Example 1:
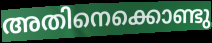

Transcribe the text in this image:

അതിനെക്കൊണ്ടു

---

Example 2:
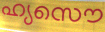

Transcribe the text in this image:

ഹ്യസൌ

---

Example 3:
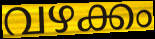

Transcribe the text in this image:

വഴക്കം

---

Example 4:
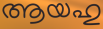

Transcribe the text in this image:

ആയഹു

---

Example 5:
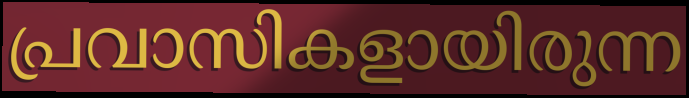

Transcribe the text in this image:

പ്രവാസികളായിരുന്ന